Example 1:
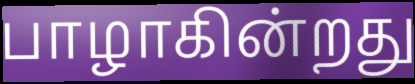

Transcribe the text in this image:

பாழாகின்றது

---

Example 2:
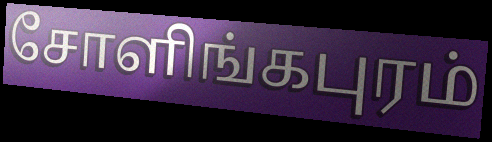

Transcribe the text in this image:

சோளிங்கபுரம்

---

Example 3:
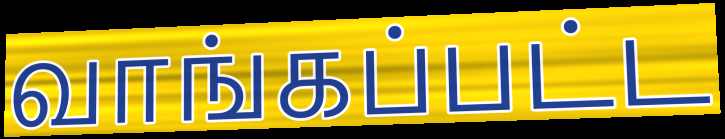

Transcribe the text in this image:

வாங்கப்பட்ட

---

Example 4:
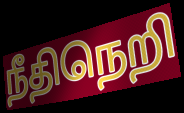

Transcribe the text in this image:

நீதிநெறி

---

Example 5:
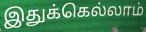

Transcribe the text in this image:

இதுக்கெல்லாம்